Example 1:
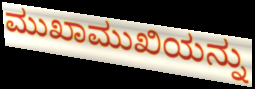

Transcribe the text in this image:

ಮುಖಾಮುಖಿಯನ್ನು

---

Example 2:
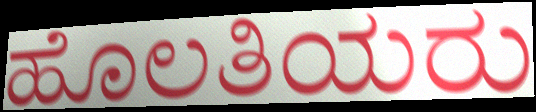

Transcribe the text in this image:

ಹೊಲತಿಯರು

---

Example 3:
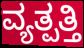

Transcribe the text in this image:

ವ್ಯತ್ಪತ್ತಿ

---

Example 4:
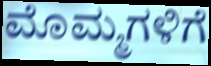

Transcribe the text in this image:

ಮೊಮ್ಮಗಳಿಗೆ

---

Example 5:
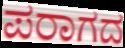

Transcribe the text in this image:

ಪರಾಗದ